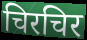
चिरचिर